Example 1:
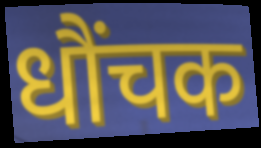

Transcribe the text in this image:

धौंचक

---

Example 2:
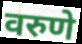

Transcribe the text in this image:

वरुणे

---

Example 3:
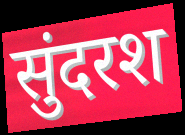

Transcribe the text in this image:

सुंदरश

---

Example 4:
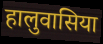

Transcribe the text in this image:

हालुवासिया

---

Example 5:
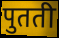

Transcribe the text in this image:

पुतती